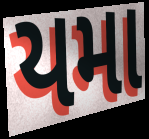
યમા